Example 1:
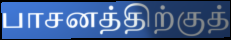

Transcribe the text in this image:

பாசனத்திற்குத்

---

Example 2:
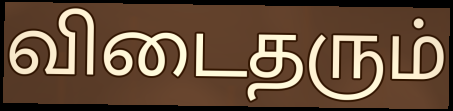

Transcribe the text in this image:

விடைதரும்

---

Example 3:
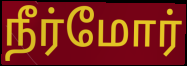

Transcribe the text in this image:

நீர்மோர்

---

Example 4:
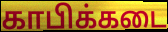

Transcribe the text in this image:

காபிக்கடை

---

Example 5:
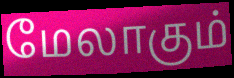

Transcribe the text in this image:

மேலாகும்